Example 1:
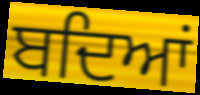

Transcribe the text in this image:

ਬਦਿਆਂ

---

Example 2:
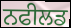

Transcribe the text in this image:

ਨਫੀਲਡ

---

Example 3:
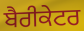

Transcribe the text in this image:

ਬੈਰੀਕੇਟਰ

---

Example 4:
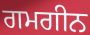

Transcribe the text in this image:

ਗਮਗੀਨ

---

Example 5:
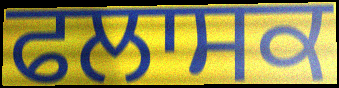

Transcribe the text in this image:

ਫਲਾਸਕ